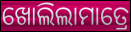
ଖୋଲିଲାମାତ୍ରେ